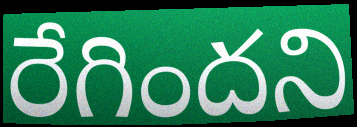
రేగిందని